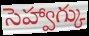
సెహ్వాగ్కు